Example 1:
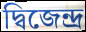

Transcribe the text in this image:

দ্বিজেন্দ্র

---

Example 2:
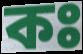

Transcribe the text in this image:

কঃ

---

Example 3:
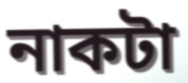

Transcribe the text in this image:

নাকটা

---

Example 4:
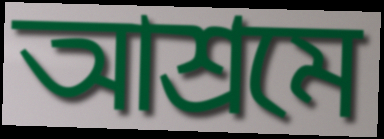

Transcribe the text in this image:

আশ্রমে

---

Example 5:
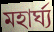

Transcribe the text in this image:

মহার্ঘ্য